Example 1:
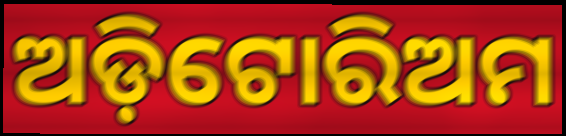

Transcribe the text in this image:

ଅଡ଼ିଟୋରିଅମ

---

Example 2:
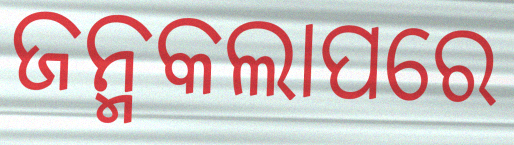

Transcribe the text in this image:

ଜନ୍ମକଲାପରେ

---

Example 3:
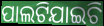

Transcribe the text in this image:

ପାଲଟିଯାଇଚି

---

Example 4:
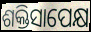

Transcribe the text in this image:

ଶକ୍ତିସାପେକ୍ଷ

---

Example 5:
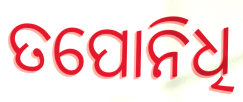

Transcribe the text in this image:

ତପୋନିଧି